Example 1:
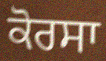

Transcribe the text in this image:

ਕੋਰਸਾ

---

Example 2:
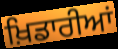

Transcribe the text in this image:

ਖ਼ਿਡਾਰੀਆਂ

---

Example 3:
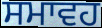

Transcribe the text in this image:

ਸਮਾਵਹ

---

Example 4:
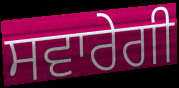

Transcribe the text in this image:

ਸਵਾਰੇਗੀ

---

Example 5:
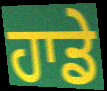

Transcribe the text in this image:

ਹਾਡੇ